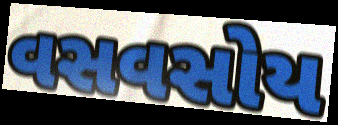
વસવસોય